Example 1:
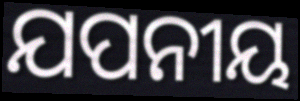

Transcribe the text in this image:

ଯପନୀୟ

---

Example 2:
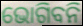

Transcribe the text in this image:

ଭୋଗିବନି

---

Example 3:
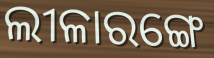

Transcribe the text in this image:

ଲୀଳାରଙ୍ଗେ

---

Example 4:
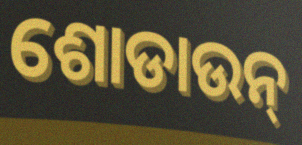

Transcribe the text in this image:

ଶୋଡାଉନ୍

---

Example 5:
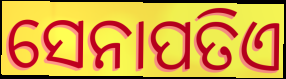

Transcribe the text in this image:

ସେନାପତିଏ